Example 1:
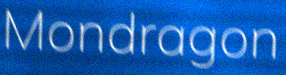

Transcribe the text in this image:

Mondragon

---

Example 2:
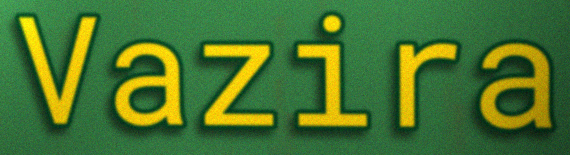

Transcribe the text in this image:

Vazira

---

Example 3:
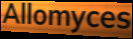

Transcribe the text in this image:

Allomyces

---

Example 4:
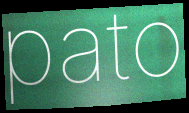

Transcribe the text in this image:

pato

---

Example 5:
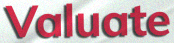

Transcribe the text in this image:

Valuate